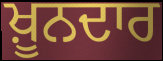
ਖ਼ੂਨਦਾਰ